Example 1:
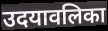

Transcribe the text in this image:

उदयावलिका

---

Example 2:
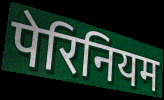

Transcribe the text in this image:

पेरिनियम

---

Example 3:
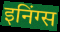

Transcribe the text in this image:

इनिंग्स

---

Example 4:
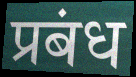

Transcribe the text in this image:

प्रबंध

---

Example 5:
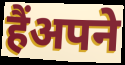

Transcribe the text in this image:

हैंअपने